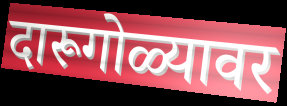
दारूगोळ्यावर